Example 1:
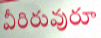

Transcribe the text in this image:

వీరిరువురూ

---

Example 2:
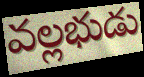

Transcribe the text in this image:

వల్లభుడు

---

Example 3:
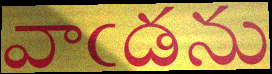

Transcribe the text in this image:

వాఁడను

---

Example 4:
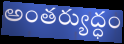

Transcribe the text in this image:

అంతర్యుద్ధం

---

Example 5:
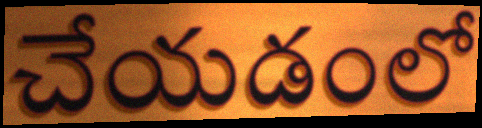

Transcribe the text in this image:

చేయడంలో